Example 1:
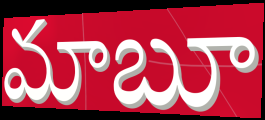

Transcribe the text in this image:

మాబూ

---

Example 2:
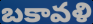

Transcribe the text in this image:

బకావళి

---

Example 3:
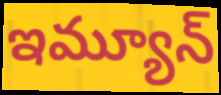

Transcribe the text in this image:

ఇమ్యూన్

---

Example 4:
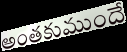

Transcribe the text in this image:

అంతకుముందే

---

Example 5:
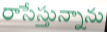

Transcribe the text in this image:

రాసేస్తున్నాను